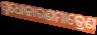
ସ୍ଵଧୋଚ୍ଚାରଣମାତ୍ରେଣ